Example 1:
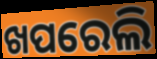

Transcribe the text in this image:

ଖପରେଲି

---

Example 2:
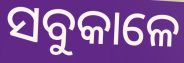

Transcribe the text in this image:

ସବୁକାଳେ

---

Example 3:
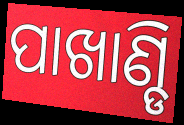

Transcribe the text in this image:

ପାଖାଣ୍ଡି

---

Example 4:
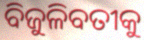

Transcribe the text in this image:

ବିଜୁଳିବତୀକୁ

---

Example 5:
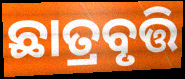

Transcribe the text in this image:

ଛାତ୍ରବୃତ୍ତି